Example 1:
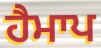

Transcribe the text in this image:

ਹੈਮਾਪ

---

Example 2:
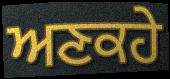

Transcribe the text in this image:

ਅਣਕਹੇ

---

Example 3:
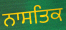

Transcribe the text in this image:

ਨਾਸਤਿਕ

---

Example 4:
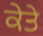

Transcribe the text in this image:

ਕੇਤੇ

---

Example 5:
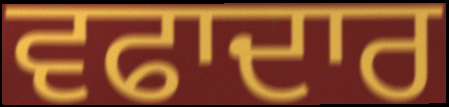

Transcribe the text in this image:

ਵਫਾਦਾਰ